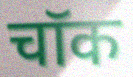
चॉक